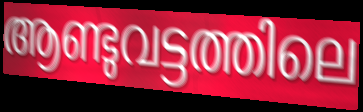
ആണ്ടുവട്ടത്തിലെ